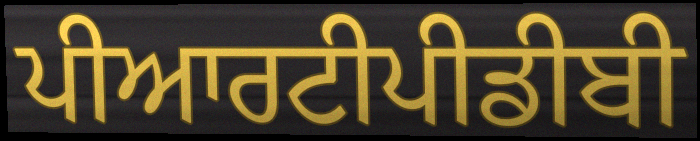
ਪੀਆਰਟੀਪੀਡੀਬੀ